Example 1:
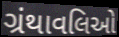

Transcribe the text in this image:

ગ્રંથાવલિઓ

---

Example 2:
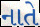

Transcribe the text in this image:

નાતે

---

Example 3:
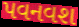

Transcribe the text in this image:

પવનવશ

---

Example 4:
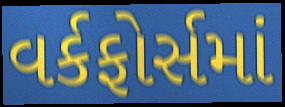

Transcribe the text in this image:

વર્કફોર્સમાં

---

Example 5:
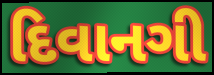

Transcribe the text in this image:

દિવાનગી